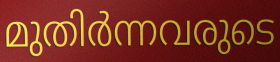
മുതിർന്നവരുടെ